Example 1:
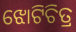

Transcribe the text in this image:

ଝୋଟିଚିତ୍ର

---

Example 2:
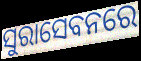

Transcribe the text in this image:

ସୁରାସେବନରେ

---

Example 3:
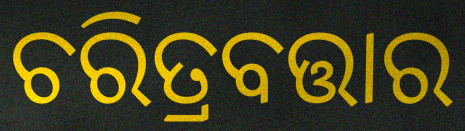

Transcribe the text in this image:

ଚରିତ୍ରବତ୍ତାର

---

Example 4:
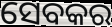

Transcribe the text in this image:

ସେବକର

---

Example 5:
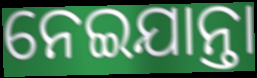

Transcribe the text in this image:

ନେଇଯାନ୍ତା